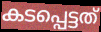
കടപ്പെട്ടത്